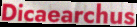
Dicaearchus